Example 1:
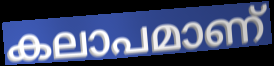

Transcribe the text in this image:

കലാപമാണ്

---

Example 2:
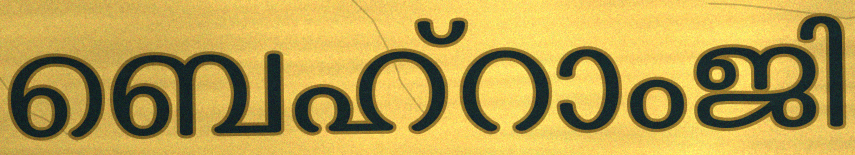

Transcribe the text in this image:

ബെഹ്റാംജി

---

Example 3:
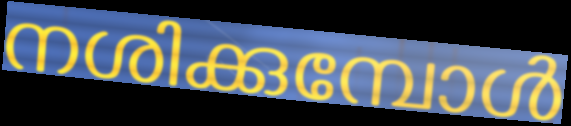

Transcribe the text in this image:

നശിക്കുമ്പോൾ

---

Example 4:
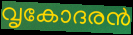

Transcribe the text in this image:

വൃകോദരൻ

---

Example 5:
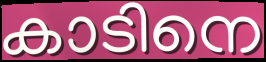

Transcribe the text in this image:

കാടിനെ